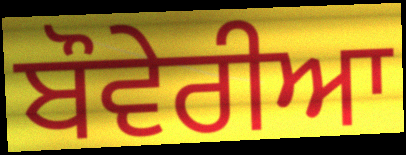
ਬੌਵੇਰੀਆ